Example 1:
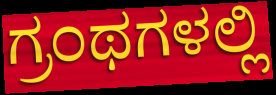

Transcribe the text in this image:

ಗ್ರಂಥಗಳಲ್ಲಿ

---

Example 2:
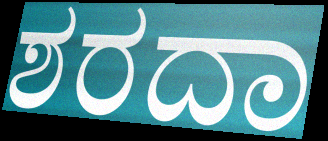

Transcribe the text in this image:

ಶರದಾ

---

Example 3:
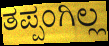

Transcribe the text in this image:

ತಪ್ಪಂಗಿಲ್ಲ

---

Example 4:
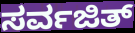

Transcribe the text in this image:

ಸರ್ವಜಿತ್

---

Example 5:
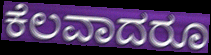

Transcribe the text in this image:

ಕೆಲವಾದರೂ